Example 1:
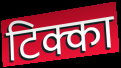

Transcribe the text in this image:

टिक्का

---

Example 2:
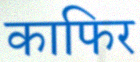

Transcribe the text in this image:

काफिर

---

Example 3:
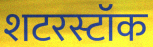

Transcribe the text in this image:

शटरस्टॉक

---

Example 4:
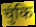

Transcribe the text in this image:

चुंकि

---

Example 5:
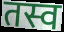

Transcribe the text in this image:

तस्व